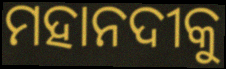
ମହାନଦୀକୁ